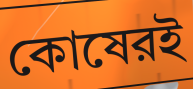
কোষেরই